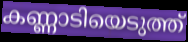
കണ്ണാടിയെടുത്ത്